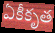
ఏకీకృత